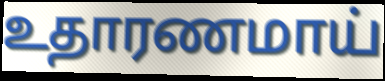
உதாரணமாய்